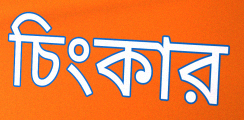
চিংকার